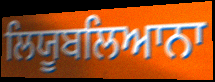
ਲਿਯੂਬਲਿਆਨਾ